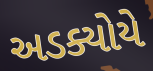
અડક્યોયે